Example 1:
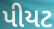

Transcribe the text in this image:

પીયટ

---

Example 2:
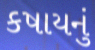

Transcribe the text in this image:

કષાયનું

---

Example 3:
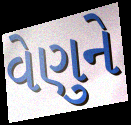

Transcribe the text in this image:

વેણુને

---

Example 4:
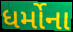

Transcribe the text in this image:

ધર્મોના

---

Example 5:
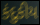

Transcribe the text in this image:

કંદુકીય